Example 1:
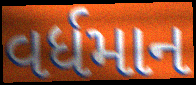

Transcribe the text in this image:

વર્ધમાન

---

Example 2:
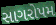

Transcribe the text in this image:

સાગરોપમ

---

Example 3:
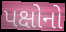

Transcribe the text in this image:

પક્ષોનો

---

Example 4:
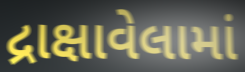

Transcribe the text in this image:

દ્રાક્ષાવેલામાં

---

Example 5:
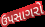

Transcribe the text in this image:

ઉપસાગરો